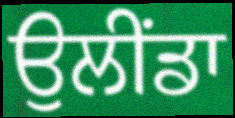
ਉਲੀਂਡਾ